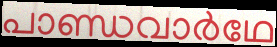
പാണ്ഡവാർഥേ